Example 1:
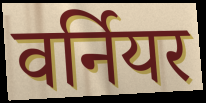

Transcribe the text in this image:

वर्नियर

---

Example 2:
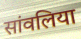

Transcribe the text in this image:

सांवलिया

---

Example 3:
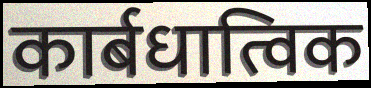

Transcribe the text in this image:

कार्बधात्विक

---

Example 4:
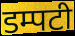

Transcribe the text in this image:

डम्पटी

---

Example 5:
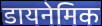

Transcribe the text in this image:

डायनेमिक